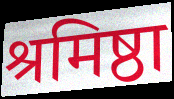
श्रमिष्ठा